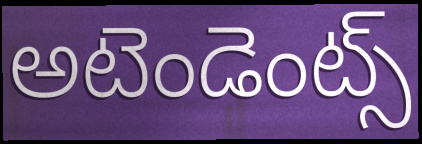
అటెండెంట్స్